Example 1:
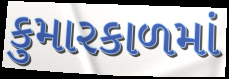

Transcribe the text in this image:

કુમારકાળમાં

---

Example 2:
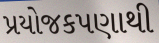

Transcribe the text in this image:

પ્રયોજકપણાથી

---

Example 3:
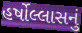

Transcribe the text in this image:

હર્ષોલ્લાસનું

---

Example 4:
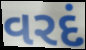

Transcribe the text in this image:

વરદં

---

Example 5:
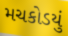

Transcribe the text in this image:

મચકોડયું